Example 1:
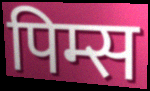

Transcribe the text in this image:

पिम्स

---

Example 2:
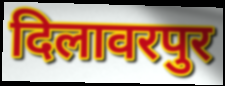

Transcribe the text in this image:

दिलावरपुर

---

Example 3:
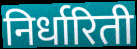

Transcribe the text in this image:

निर्धारिती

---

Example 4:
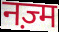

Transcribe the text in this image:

नज़्म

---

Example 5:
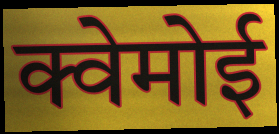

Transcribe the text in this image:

क्वेमोई